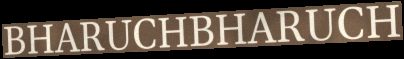
BHARUCHBHARUCH